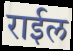
राईल